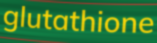
glutathione